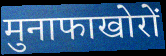
मुनाफाखोरों